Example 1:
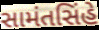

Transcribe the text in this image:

સામંતસિંહે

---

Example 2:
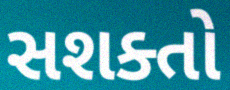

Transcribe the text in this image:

સશક્તો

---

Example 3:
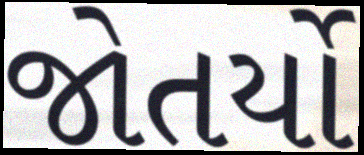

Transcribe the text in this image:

જોતર્યો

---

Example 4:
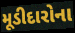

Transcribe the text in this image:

મૂડીદારોના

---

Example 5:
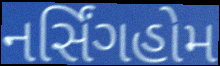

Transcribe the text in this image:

નર્સિંગહોમ